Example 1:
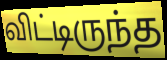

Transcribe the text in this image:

விட்டிருந்த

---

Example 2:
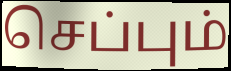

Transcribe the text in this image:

செப்பும்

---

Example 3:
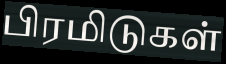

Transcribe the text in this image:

பிரமிடுகள்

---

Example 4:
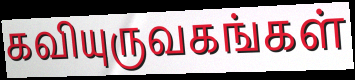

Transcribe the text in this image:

கவியுருவகங்கள்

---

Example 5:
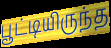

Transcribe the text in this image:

பூட்டியிருந்த